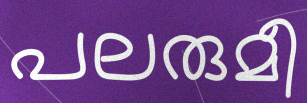
പലരുമീ